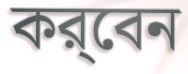
কর্‌বেন